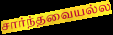
சார்ந்தவையல்ல